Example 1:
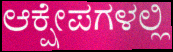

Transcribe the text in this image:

ಆಕ್ಷೇಪಗಳಲ್ಲಿ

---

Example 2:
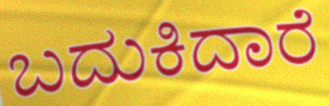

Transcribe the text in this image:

ಬದುಕಿದಾರೆ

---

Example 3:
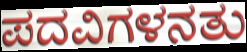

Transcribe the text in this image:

ಪದವಿಗಳನತು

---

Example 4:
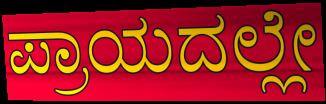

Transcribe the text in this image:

ಪ್ರಾಯದಲ್ಲೇ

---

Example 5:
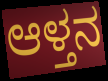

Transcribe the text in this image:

ಆಳ್ತನ